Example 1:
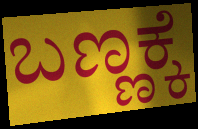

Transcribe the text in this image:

ಬಣ್ಣಕ್ಕೆ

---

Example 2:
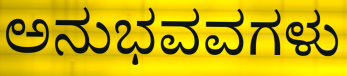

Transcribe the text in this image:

ಅನುಭವವಗಳು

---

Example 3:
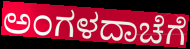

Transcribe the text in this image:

ಅಂಗಳದಾಚೆಗೆ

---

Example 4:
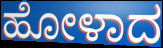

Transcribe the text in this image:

ಹೋಳಾದ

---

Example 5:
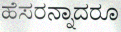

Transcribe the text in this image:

ಹೆಸರನ್ನಾದರೂ